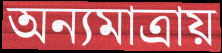
অন্যমাত্রায়